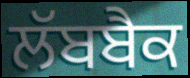
ਲੱਬਬੈਕ